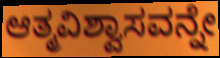
ಆತ್ಮವಿಶ್ವಾಸವನ್ನೇ